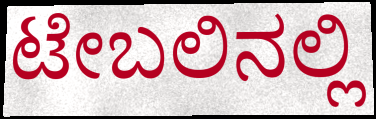
ಟೇಬಲಿನಲ್ಲಿ